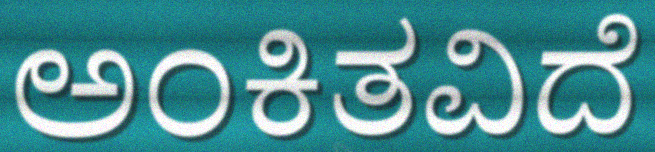
ಅಂಕಿತವಿದೆ